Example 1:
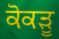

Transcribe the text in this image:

ਕੋਕੜੂ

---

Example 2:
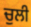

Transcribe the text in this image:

ਚੁਲੀ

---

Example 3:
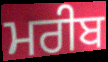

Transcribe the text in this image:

ਮਰੀਬ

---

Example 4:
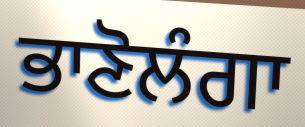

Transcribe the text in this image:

ਭਾਣੋਲੰਗਾ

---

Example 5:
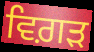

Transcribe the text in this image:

ਵਿਗ਼ੜ